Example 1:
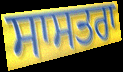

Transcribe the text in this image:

ਸਾਸਤਰਾ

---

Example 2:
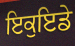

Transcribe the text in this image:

ਇਕੁਇਡੇ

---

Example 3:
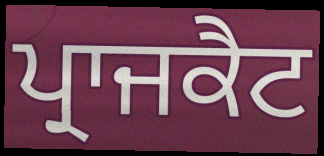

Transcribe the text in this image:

ਪ੍ਰਾਜਕੈਟ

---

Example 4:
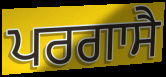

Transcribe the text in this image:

ਪਰਗਾਸੈ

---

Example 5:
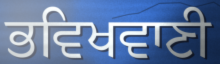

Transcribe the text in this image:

ਭਵਿਖਵਾਣੀ